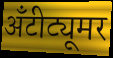
अँटीट्यूमर